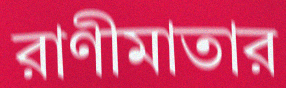
রাণীমাতার